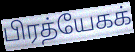
பிரத்யேகக்